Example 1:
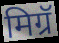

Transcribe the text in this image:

मिग्रॅ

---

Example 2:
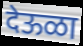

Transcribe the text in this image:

देऊळा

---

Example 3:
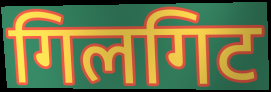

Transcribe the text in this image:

गिलगिट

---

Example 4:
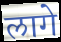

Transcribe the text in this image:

लागे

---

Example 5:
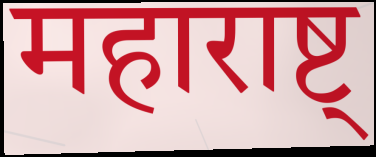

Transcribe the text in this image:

महाराष्ट्